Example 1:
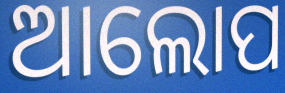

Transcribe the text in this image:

ଆଲୋପ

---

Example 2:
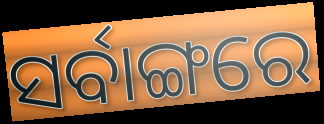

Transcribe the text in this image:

ସର୍ବାଙ୍ଗରେ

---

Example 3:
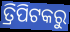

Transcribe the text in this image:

ତ୍ରିପିଟକରୁ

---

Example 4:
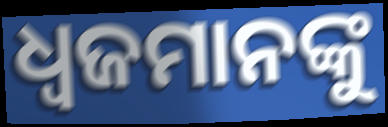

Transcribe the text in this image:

ଧ୍ୱଜମାନଙ୍କୁ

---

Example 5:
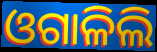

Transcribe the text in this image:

ଓଗାଳିଲି